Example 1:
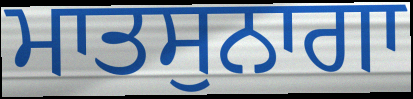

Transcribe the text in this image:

ਮਾਤਸੁਨਾਗਾ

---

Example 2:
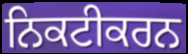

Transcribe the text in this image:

ਨਿਕਟੀਕਰਨ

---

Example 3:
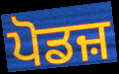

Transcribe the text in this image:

ਪੋਡਜ਼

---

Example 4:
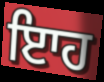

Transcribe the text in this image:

ਇਾਹ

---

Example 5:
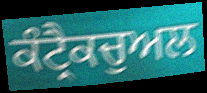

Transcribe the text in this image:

ਕੰਟ੍ਰੈਕਚੁਅਲ